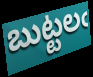
బుట్టలఁ